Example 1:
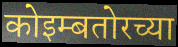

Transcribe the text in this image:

कोइम्बतोरच्या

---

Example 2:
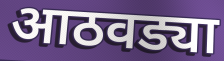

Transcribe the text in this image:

आठवड्या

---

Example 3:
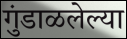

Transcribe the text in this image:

गुंडाळलेल्या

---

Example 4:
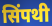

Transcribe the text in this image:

सिंपथी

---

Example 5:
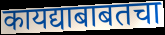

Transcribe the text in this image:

कायद्याबाबतचा